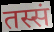
तस्सं